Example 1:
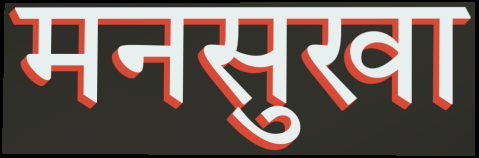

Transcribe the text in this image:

मनसुखा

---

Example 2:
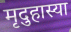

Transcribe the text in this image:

मृदुहास्या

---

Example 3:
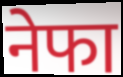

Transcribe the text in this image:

नेफा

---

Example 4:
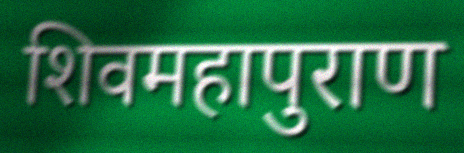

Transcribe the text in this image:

शिवमहापुराण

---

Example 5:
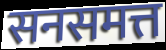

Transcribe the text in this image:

सनसमत्त